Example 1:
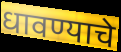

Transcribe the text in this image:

धावण्याचे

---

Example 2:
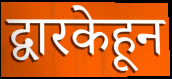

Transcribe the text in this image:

द्वारकेहून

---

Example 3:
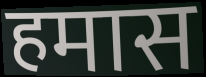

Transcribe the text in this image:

हमास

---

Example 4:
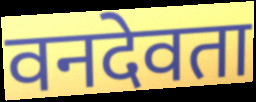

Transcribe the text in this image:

वनदेवता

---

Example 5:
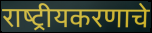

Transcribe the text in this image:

राष्ट्रीयकरणाचे